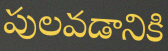
పులవడానికి